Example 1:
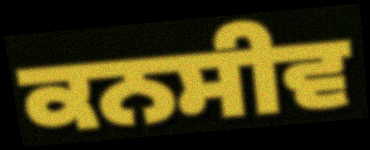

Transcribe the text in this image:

ਕਨਸੀਵ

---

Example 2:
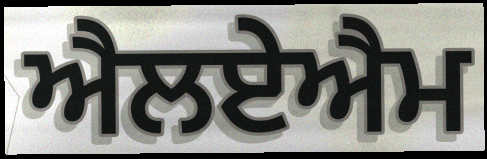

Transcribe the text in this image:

ਐਲਏਐਮ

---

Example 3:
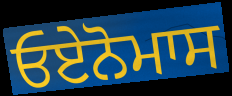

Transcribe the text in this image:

ਓਏਨੋਮਾਸ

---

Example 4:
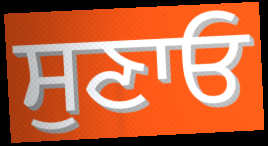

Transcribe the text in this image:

ਸੁਣਾਓ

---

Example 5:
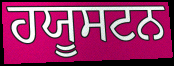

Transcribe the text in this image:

ਹਯੂਸਟਨ